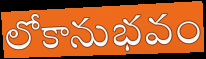
లోకానుభవం